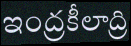
ఇంద్రకీలాద్రి